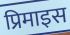
प्रिमाइस